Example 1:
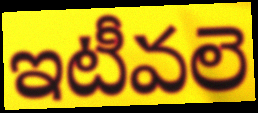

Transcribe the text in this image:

ఇటీవలె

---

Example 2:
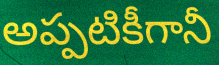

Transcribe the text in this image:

అప్పటికీగానీ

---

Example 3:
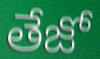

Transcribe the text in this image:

తేజో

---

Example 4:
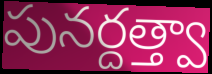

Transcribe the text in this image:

పునర్దత్త్వా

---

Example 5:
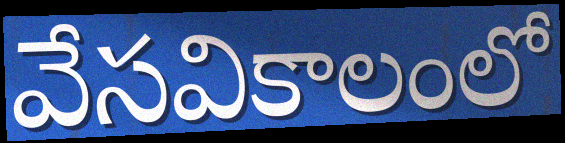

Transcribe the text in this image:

వేసవికాలంలో